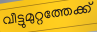
വീട്ടുമുറ്റത്തേക്ക്